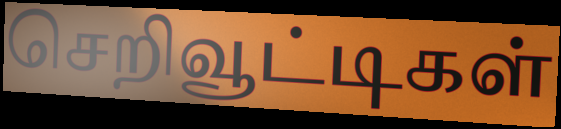
செறிவூட்டிகள்